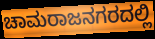
ಚಾಮರಾಜನಗರದಲ್ಲಿ